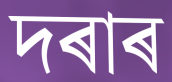
দৰাৰ